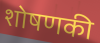
शोषणकी